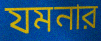
যমনার